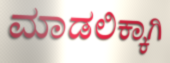
ಮಾಡಲಿಕ್ಕಾಗಿ